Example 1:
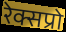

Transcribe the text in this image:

रेक्सप्रो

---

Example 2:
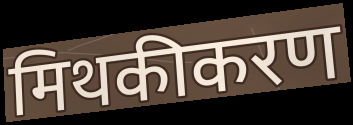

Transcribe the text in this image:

मिथकीकरण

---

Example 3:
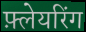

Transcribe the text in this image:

फ़्लेयरिंग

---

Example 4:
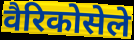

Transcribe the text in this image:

वैरिकोसेले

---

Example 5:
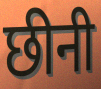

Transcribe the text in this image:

छीनी